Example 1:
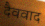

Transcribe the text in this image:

दैववाद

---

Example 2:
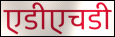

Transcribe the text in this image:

एडीएचडी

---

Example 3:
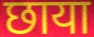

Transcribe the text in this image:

छाया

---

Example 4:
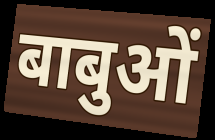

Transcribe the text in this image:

बाबुओं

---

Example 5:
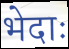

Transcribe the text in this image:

भेदाः